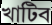
খাটিব